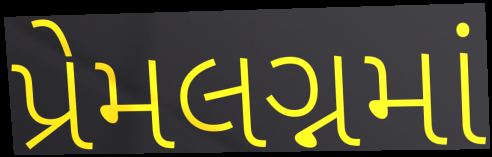
પ્રેમલગ્નમાં